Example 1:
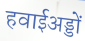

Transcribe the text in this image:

हवाईअड्डों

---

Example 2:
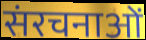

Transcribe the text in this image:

संरचनाओं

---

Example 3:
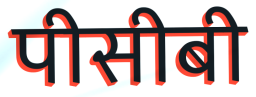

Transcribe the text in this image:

पीसीबी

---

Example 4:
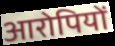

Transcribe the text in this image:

आरोपियों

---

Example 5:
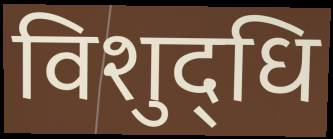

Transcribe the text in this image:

विशुद्धि